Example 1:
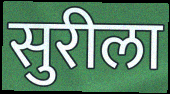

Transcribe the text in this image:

सुरीला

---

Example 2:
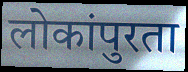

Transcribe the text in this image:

लोकांपुरता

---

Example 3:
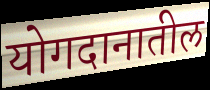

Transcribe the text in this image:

योगदानातील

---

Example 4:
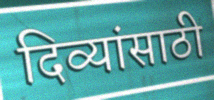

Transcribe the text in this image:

दिव्यांसाठी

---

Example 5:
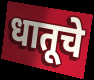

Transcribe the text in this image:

धातूचे